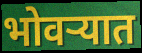
भोवऱ्यात